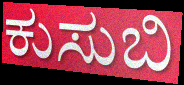
ಕುಸುಬಿ